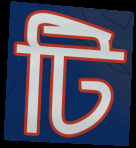
টি